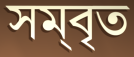
সম্‌বৃত